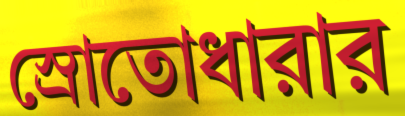
স্রোতোধারার